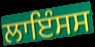
ਲਾਇੰਸਸ